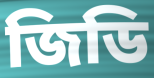
জিডি